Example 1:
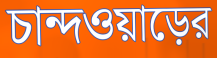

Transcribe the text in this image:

চান্দওয়াড়ের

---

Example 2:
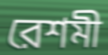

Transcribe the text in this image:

রেশমী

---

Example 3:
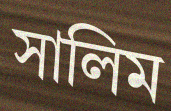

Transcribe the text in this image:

সালিম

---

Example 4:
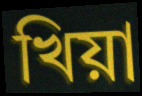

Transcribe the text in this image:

খিয়া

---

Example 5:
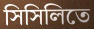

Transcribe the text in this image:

সিসিলিতে